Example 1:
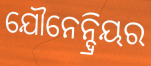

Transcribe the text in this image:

ଯୌନେନ୍ଦ୍ରିୟର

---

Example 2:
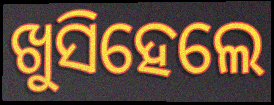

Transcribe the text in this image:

ଖୁସିହେଲେ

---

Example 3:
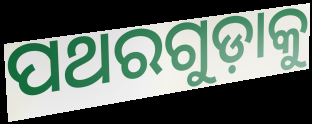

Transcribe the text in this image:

ପଥରଗୁଡ଼ାକୁ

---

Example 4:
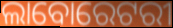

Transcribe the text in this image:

ଲାବୋରେଟରୀ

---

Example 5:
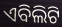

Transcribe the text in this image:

ଏବିଲିଟି